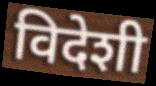
विदेशी